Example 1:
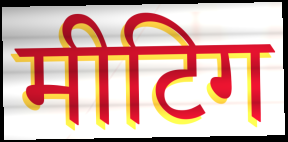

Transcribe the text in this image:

मीटिग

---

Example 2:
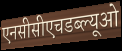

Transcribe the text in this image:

एनसीसीएचडब्ल्यूओ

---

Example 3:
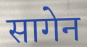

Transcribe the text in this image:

सागेन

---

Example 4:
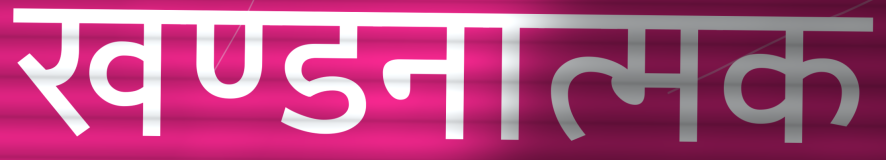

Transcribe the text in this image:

खण्डनात्मक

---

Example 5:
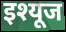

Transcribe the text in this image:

इश्यूज